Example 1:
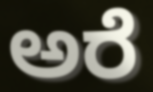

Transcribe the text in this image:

ಅರೆ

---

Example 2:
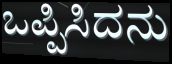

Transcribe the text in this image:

ಒಪ್ಪಿಸಿದನು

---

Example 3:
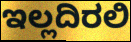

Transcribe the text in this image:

ಇಲ್ಲದಿರಲಿ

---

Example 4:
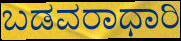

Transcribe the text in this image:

ಬಡವರಾಧಾರಿ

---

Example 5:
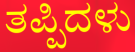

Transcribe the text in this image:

ತಪ್ಪಿದಳು